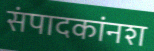
संपादकांनश